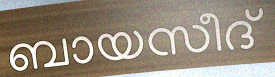
ബായസീദ്